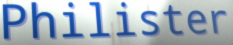
Philister